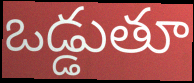
ఒడ్డుతూ